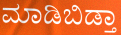
ಮಾಡಿಬಿಡ್ತಾ